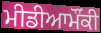
ਮੀਡੀਆਮੌਂਕੀ